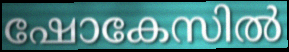
ഷോകേസിൽ